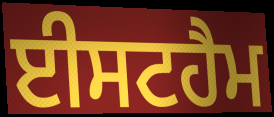
ਈਸਟਹੈਮ